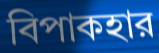
বিপাকহার